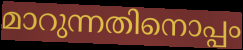
മാറുന്നതിനൊപ്പം